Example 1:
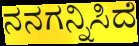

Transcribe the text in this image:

ನನಗನ್ನಿಸಿದೆ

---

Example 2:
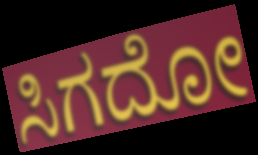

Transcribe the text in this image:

ಸಿಗದೋ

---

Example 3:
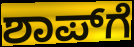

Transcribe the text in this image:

ಶಾಪ್‌ಗೆ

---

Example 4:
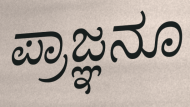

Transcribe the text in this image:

ಪ್ರಾಜ್ಞನೂ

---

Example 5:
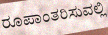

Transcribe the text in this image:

ರೂಪಾಂತರಿಸುವಲ್ಲಿ